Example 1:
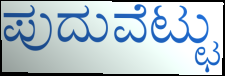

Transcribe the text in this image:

ಪುದುವೆಟ್ಟು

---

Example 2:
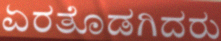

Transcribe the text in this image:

ಏರತೊಡಗಿದರು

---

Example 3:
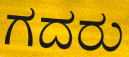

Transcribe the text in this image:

ಗದರು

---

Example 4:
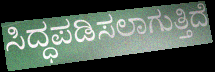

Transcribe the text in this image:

ಸಿದ್ಧಪಡಿಸಲಾಗುತ್ತಿದೆ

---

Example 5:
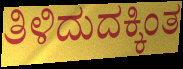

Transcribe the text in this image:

ತಿಳಿದುದಕ್ಕಿಂತ